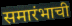
समारंभाची